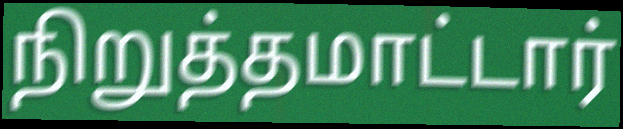
நிறுத்தமாட்டார்